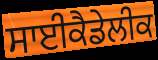
ਸਾਈਕੈਡੇਲੀਕ